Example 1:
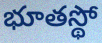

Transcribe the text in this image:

భూతస్థో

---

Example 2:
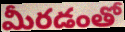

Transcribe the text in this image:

మీరడంతో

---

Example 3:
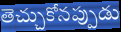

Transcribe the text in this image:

తెచ్చుకోనప్పుడు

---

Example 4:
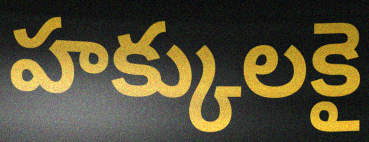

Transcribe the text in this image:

హక్కులకై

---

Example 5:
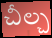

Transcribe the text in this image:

చీల్చ